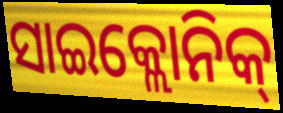
ସାଇକ୍ଲୋନିକ୍